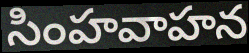
సింహవాహన